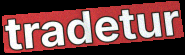
tradetur